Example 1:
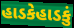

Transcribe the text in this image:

હાડકેહાડકું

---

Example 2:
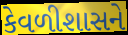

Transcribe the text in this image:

કેવળીશાસને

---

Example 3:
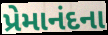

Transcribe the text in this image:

પ્રેમાનંદના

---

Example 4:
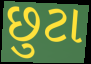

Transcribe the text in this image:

છુટા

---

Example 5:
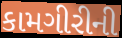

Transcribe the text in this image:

કામગીરીની